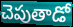
చెపుతాడో